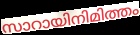
സാറായിനിമിത്തം